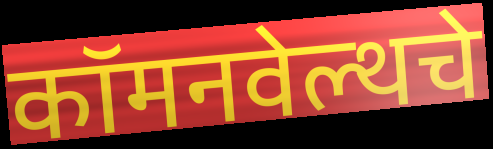
कॉमनवेल्थचे